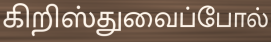
கிறிஸ்துவைப்போல்